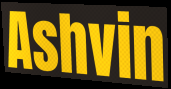
Ashvin